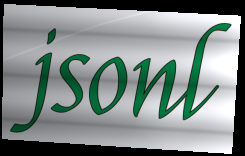
jsonl